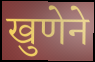
खुणेने